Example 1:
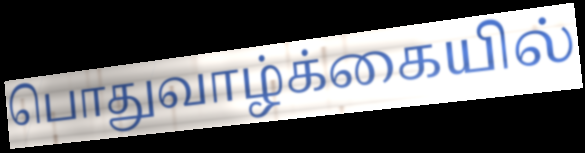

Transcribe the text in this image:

பொதுவாழ்க்கையில்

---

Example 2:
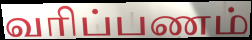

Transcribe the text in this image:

வரிப்பணம்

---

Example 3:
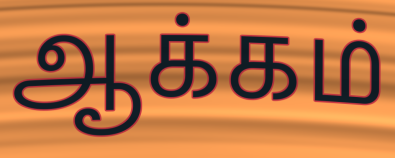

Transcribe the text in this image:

ஆக்கம்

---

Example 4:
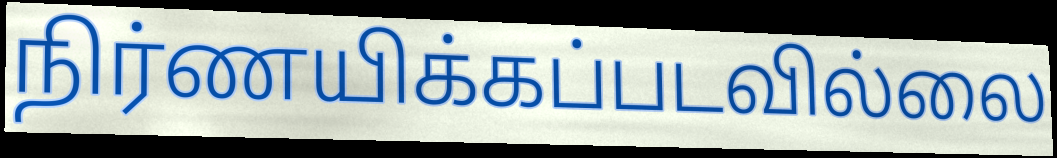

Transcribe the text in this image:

நிர்ணயிக்கப்படவில்லை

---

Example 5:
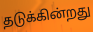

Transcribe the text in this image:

தடுக்கின்றது